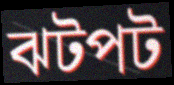
ঝটপট